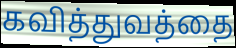
கவித்துவத்தை